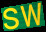
sw